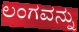
ಲಂಗವನ್ನು